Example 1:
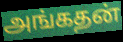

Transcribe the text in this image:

அங்கதன்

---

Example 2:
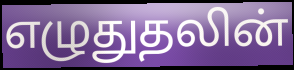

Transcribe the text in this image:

எழுதுதலின்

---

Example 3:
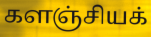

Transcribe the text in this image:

களஞ்சியக்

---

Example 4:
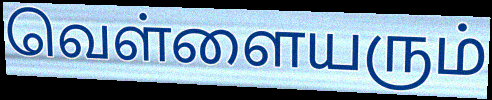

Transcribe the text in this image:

வெள்ளையரும்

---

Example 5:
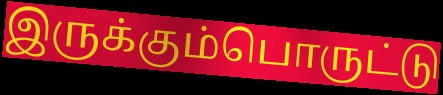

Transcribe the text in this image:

இருக்கும்பொருட்டு